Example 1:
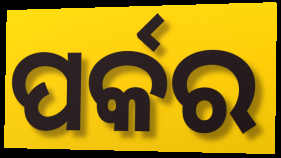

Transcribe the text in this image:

ପର୍କର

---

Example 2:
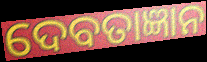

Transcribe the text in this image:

ଦେବତାଜ୍ଞାନ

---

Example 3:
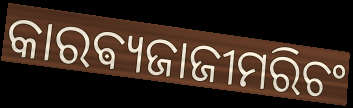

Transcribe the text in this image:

କାରଵ୍ଯଜାଜୀମରିଚଂ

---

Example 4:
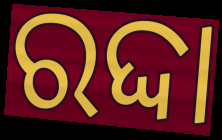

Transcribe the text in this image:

ରଦ୍ଦା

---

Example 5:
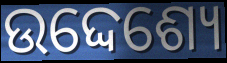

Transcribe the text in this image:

ଉଦ୍ଦେଶ୍ୟେ